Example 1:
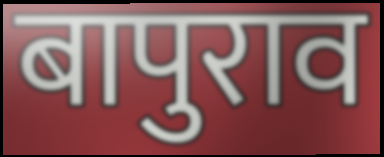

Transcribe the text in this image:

बापुराव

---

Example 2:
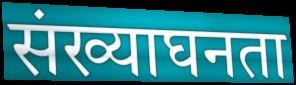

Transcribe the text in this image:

संख्याघनता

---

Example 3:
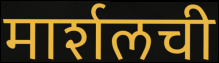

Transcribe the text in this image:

मार्शलची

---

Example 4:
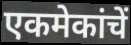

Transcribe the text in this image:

एकमेकांचें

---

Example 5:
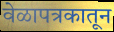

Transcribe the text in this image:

वेळापत्रकातून